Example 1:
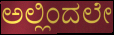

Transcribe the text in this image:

ಅಲ್ಲಿಂದಲೇ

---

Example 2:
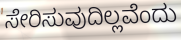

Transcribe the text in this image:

ಸೇರಿಸುವುದಿಲ್ಲವೆಂದು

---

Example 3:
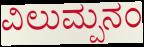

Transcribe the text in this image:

ವಿಲುಮ್ಪನಂ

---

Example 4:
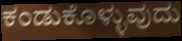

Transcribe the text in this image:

ಕಂಡುಕೊಳ್ಳುವುದು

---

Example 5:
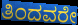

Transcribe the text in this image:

ತಿಂದವರೇ